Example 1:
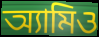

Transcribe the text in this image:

অ্যামিও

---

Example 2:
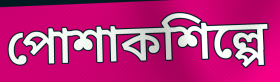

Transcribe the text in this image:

পোশাকশিল্পে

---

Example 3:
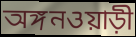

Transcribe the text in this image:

অঙ্গনওয়াড়ী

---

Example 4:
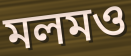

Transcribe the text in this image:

মলমও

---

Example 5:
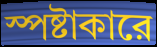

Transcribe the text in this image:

স্পষ্টাকারে